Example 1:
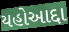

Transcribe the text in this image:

યહોઆદ્દા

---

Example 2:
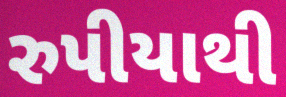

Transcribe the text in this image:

રુપીયાથી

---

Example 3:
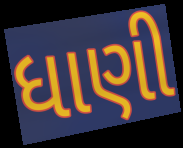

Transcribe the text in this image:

ધાણી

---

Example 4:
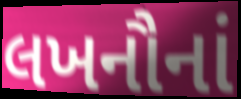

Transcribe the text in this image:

લખનૌનાં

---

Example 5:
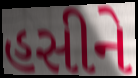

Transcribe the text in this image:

હસીને